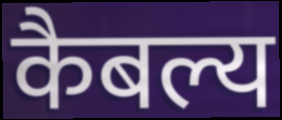
कैबल्य